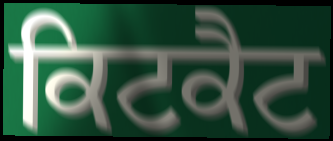
ਕਿਟਕੈਟ